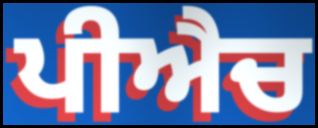
ਪੀਐਚ